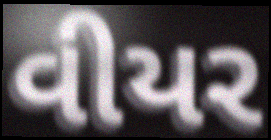
વીયર